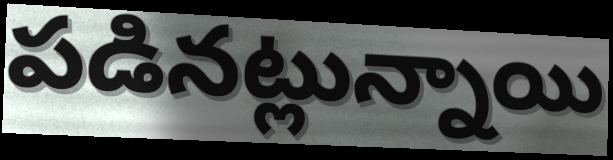
పడినట్లున్నాయి